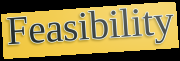
Feasibility